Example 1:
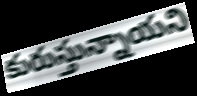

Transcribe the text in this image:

కురుస్తున్నాయని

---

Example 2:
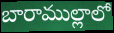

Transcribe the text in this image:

బారాముల్లాలో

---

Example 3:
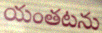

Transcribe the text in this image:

యంతటను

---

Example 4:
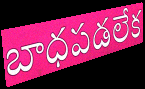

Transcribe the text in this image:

బాధపడలేక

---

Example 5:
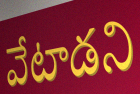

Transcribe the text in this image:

వేటాడని